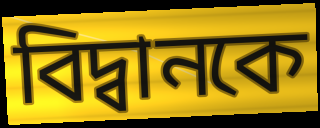
বিদ্বানকে